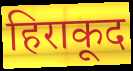
हिराकूद